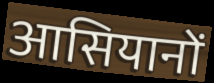
आसियानों